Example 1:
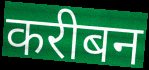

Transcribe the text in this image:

करीबन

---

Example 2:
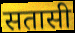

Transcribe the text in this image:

सतासी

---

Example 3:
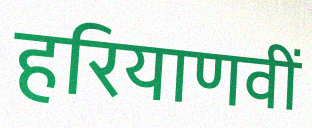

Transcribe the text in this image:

हरियाणवीं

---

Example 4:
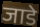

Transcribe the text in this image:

जाडे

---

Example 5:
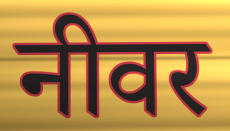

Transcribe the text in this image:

नीवर